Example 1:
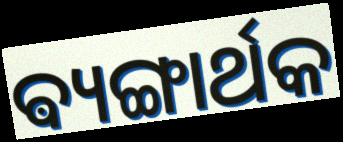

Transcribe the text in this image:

ଵ୍ୟଙ୍ଗାର୍ଥକ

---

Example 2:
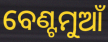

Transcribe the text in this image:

ବେଣ୍ଟମୁଆଁ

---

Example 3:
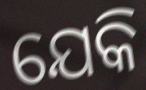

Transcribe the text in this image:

ଯେକି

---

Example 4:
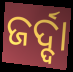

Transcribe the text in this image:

ଜର୍ଦ୍ଦା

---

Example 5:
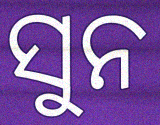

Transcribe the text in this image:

ସୁନ